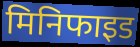
मिनिफाइड